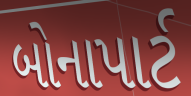
બોનાપાર્ટ